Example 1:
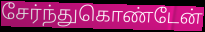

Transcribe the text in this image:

சேர்ந்துகொண்டேன்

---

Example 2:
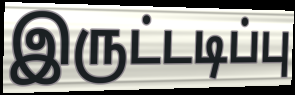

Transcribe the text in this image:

இருட்டடிப்பு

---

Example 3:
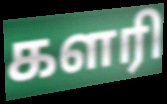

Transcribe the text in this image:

களரி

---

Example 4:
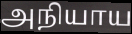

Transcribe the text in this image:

அநியாய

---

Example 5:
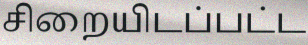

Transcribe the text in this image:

சிறையிடப்பட்ட